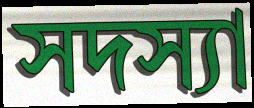
সদস্যা